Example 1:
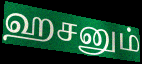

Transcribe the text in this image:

ஹசனும்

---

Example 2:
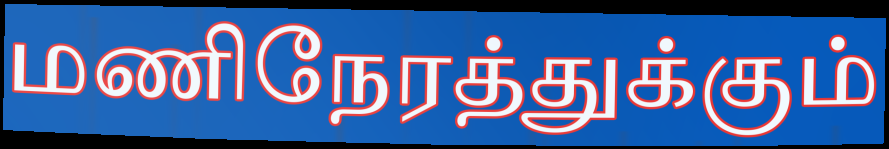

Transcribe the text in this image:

மணிநேரத்துக்கும்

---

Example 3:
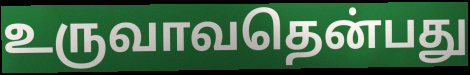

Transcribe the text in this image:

உருவாவதென்பது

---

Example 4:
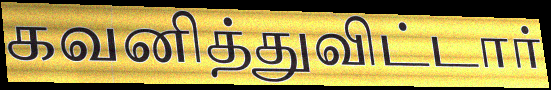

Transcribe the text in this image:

கவனித்துவிட்டார்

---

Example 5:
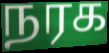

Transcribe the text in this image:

நரக